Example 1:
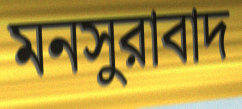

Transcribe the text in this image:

মনসুরাবাদ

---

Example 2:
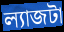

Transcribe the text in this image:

ল্যাজটা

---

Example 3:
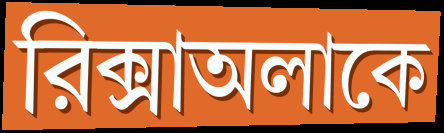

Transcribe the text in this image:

রিক্সাঅলাকে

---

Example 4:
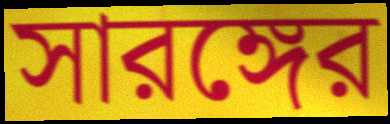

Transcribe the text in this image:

সারঙ্গের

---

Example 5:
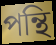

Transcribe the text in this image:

পন্থি